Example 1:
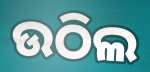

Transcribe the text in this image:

ଉଠିଲ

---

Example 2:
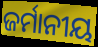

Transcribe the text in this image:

ଜର୍ମାନୀୟ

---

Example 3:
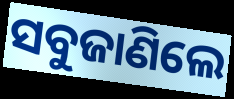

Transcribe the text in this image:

ସବୁଜାଣିଲେ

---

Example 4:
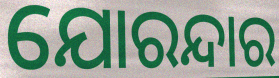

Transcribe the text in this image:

ଯୋରନ୍ଦାର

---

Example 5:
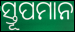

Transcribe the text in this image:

ସ୍ତୂପମାନ